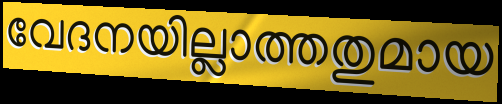
വേദനയില്ലാത്തതുമായ